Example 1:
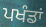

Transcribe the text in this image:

ਪਖੰਡਾਂ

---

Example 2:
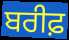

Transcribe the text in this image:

ਬਰੀਫ਼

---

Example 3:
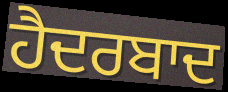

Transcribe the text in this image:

ਹੈਦਰਬਾਦ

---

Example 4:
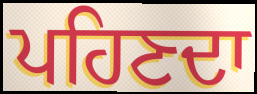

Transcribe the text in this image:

ਪਹਿਣਦਾ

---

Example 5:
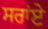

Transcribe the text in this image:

ਸਰਾਂਏ